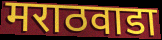
मराठवाडा